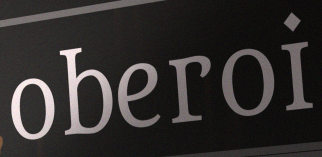
oberoi